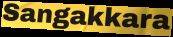
Sangakkara